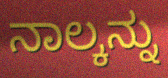
ನಾಲ್ಕನ್ನು